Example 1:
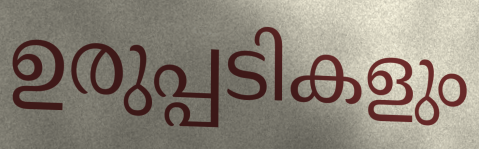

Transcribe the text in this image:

ഉരുപ്പടികളും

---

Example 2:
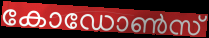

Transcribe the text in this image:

കോഡോൺസ്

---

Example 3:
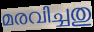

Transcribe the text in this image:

മരവിച്ചതു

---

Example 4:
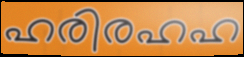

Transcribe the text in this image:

ഹരിരഹഹ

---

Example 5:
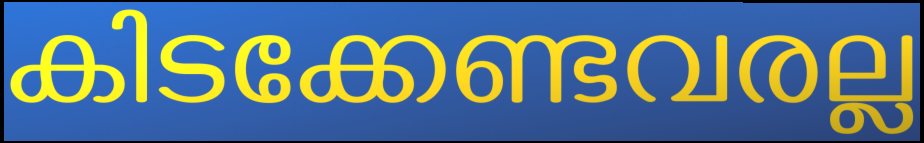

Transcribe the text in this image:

കിടക്കേണ്ടവരല്ല